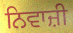
ਨਿਵਾਜ਼ੀ